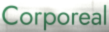
Corporeal